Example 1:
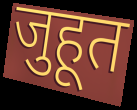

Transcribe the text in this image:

जुहूत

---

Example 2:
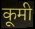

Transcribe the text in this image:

कूमी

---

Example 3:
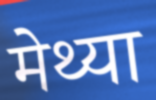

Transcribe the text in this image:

मेथ्या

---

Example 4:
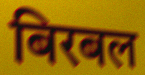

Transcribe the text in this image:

बिरबल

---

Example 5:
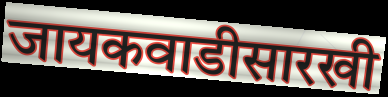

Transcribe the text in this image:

जायकवाडीसारखी